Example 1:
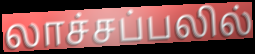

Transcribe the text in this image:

லாச்சப்பலில்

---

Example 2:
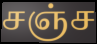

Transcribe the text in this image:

சஞ்ச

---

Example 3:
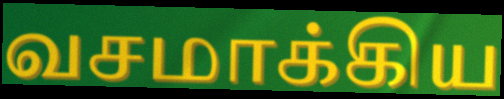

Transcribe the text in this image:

வசமாக்கிய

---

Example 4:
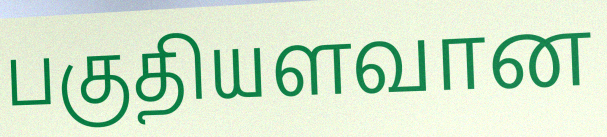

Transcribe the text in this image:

பகுதியளவான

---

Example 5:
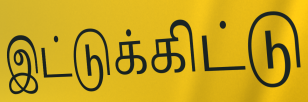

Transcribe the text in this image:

இட்டுக்கிட்டு